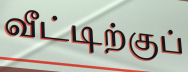
வீட்டிற்குப்